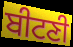
ਬੀਟਣੀ